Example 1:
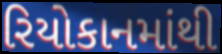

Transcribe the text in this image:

રિયોકાનમાંથી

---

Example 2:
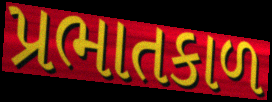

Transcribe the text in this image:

પ્રભાતકાળ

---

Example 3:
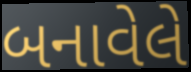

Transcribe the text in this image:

બનાવેલે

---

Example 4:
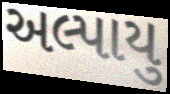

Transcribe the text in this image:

અલ્પાયુ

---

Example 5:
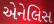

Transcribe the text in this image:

એનેલિસ